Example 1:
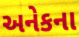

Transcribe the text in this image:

અનેકના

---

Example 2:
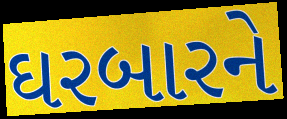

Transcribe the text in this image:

ઘરબારને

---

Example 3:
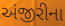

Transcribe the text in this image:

અંજીરીના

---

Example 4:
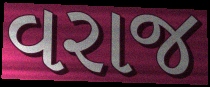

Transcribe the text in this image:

વરાજ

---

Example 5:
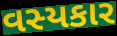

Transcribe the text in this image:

વસ્યકાર